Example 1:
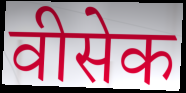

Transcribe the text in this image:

वीसेक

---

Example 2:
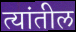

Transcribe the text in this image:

त्‍यांतील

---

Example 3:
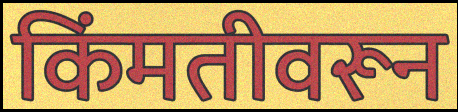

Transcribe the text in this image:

किंमतीवरून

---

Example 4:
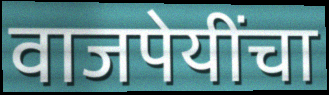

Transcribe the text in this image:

वाजपेयींचा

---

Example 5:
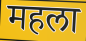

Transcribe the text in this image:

महला